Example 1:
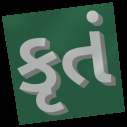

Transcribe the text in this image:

કૃતં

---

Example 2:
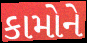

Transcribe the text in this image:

કામોને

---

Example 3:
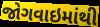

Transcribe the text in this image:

જોગવાઇમાંથી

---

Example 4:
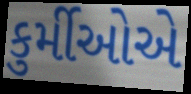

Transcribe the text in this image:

કુર્મીઓએ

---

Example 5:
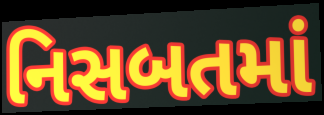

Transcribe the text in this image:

નિસબતમાં